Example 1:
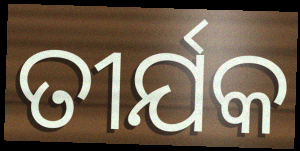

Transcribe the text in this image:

ତୀର୍ଯକ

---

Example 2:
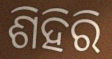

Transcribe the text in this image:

ଶିହିରି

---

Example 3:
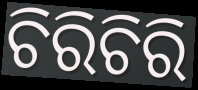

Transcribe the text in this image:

ଚିରିଚିରି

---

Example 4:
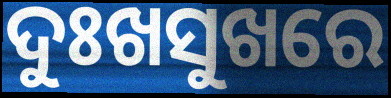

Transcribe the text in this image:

ଦୁଃଖସୁଖରେ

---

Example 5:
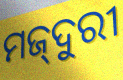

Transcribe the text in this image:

ମଜ୍‌ଦୁରୀ